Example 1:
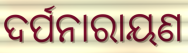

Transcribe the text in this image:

ଦର୍ପନାରାୟଣ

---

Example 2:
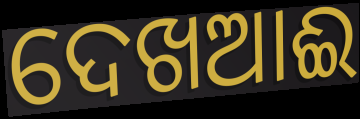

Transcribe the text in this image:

ଦେଖଆଈ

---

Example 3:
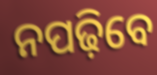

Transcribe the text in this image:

ନପଢ଼ିବେ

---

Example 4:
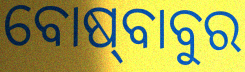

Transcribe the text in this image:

ବୋଷ୍‍ବାବୁର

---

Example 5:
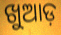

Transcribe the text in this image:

ଖୁଆଡ଼